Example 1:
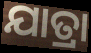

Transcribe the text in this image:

ଯାତ୍ରା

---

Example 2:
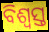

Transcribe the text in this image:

ବିଶ୍ୱସ୍ତ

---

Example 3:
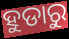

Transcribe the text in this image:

ହୁଡାରୁ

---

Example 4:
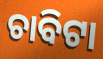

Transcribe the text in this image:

ଚାବିଟା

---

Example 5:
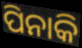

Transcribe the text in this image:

ପିନାକି